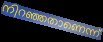
നിറഞ്ഞതാണെന്ന്